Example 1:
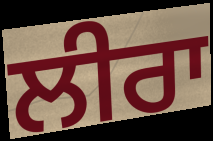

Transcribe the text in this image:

ਲੀਰਾ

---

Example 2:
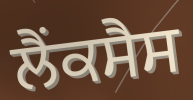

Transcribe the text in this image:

ਲੈਂਕਸੈਸ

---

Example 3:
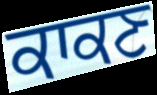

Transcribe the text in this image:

ਕਾਕਣ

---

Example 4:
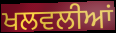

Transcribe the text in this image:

ਖਲਵਲੀਆਂ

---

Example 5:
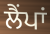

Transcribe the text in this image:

ਲੈਂਪਾਂ